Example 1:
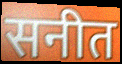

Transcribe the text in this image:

सनीत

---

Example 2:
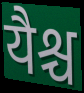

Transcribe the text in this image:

यैश्च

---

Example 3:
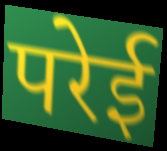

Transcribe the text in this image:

परेई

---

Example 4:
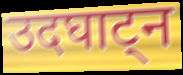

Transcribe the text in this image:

उदघाट्न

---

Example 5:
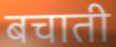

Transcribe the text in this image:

बचाती